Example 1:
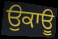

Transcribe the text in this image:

ਉਕਾਊ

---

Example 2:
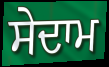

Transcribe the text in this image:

ਸੇਦਾਮ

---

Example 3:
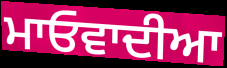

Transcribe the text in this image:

ਮਾਓਵਾਦੀਆ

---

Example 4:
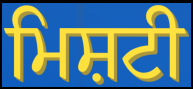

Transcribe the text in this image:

ਮਿਸ਼ਟੀ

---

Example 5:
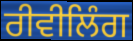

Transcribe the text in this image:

ਰੀਵੀਲਿੰਗ